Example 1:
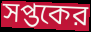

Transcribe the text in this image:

সপ্তকের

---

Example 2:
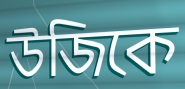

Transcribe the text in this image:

উজিকে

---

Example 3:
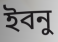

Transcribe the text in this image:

ইবনু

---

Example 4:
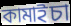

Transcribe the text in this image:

কামাইচা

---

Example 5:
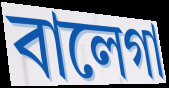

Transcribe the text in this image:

বালেগা